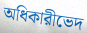
অধিকারীভেদ